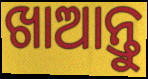
ଖାଆନ୍ତୁ